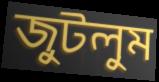
জুটলুম